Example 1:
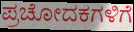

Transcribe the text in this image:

ಪ್ರಚೋದಕಗಳಿಗೆ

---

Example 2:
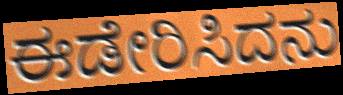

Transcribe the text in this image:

ಈಡೇರಿಸಿದನು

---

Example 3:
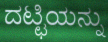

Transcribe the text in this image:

ದಟ್ಟಿಯನ್ನು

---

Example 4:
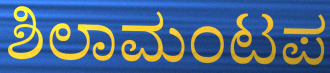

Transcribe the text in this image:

ಶಿಲಾಮಂಟಪ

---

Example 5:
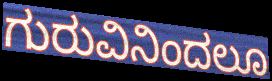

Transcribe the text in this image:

ಗುರುವಿನಿಂದಲೂ